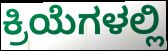
ಕ್ರಿಯೆಗಳಲ್ಲಿ